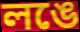
লঙে